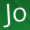
Jo